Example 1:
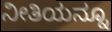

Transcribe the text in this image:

ನೀತಿಯನ್ನೂ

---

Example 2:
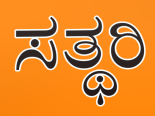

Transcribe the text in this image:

ಸತ್ಥರಿ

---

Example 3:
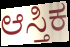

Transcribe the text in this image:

ಆಸ್ತಿಕ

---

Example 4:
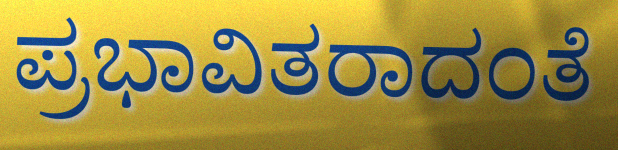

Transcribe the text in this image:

ಪ್ರಭಾವಿತರಾದಂತೆ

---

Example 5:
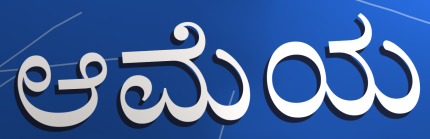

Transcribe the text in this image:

ಆಮೆಯ